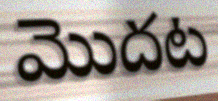
మొదట